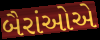
બૈરાંઓએ